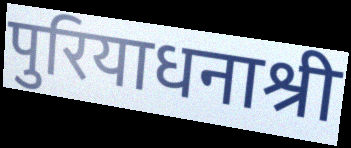
पुरियाधनाश्री